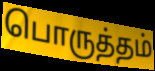
பொருத்தம்